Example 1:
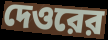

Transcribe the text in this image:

দেওরের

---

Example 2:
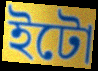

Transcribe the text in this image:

ইটো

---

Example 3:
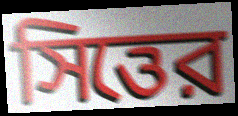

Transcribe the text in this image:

সিত্তের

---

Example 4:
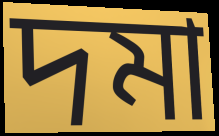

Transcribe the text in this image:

দমা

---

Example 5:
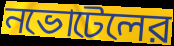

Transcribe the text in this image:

নভোটেলের